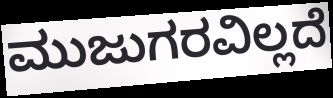
ಮುಜುಗರವಿಲ್ಲದೆ